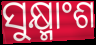
ସୁକ୍ଷ୍ମାଂଶ